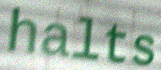
halts